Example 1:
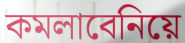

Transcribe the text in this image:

কমলাবেনিয়ে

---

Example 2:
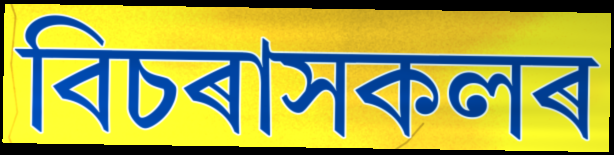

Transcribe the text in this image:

বিচৰাসকলৰ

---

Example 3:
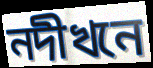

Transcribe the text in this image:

নদীখনে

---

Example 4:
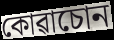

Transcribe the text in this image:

কোৱাচোন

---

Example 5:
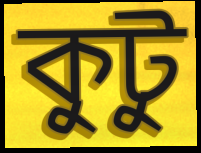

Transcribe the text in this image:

কুটু